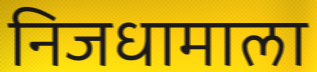
निजधामाला